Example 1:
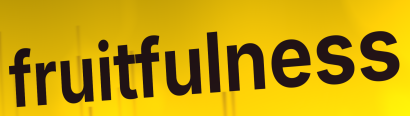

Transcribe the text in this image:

fruitfulness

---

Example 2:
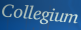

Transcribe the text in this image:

Collegium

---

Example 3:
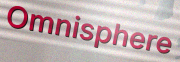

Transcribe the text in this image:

Omnisphere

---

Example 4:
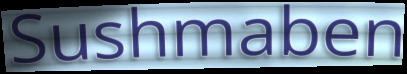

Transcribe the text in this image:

Sushmaben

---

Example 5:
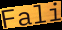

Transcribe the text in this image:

Fali